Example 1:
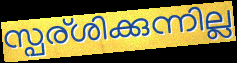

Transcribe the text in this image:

സ്പര്ശിക്കുന്നില്ല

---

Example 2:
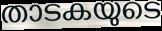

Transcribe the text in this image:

താടകയുടെ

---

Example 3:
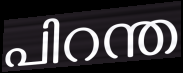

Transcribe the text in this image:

പിറന്ത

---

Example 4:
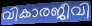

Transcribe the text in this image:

വികാരജീവി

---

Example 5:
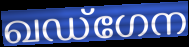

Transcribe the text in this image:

ഖഡ്ഗേന